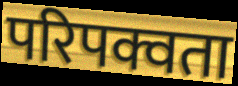
परिपक्‍वता